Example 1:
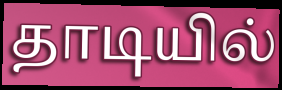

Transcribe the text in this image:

தாடியில்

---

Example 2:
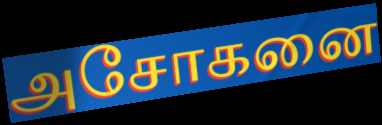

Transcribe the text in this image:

அசோகனை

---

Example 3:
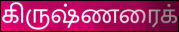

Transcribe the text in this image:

கிருஷ்ணரைக்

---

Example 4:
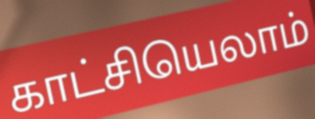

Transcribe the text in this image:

காட்சியெலாம்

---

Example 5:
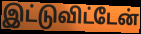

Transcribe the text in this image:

இட்டுவிட்டேன்